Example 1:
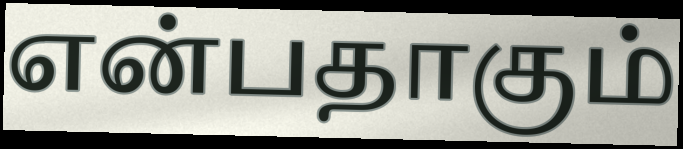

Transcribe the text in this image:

என்பதாகும்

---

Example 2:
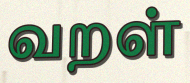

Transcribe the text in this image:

வறள்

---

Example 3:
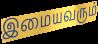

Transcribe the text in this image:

இமையவரும்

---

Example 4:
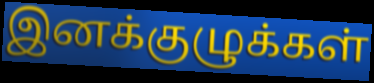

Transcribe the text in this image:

இனக்குழுக்கள்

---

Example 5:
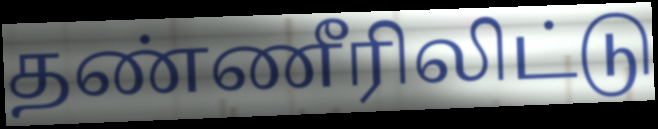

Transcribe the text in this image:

தண்ணீரிலிட்டு